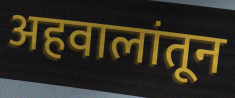
अहवालांतून